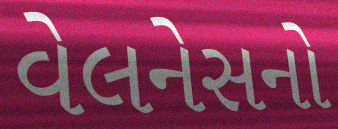
વેલનેસનો